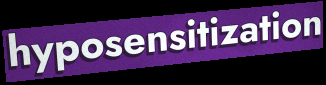
hyposensitization